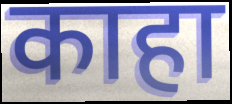
काहा